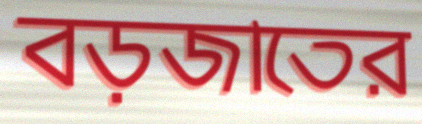
বড়জাতের